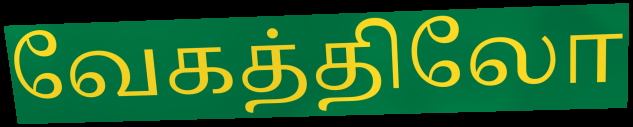
வேகத்திலோ